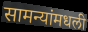
सामन्यांमधली